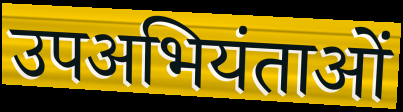
उपअभियंताओं